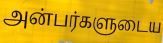
அன்பர்களுடைய